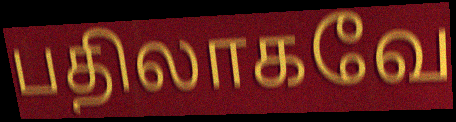
பதிலாகவே